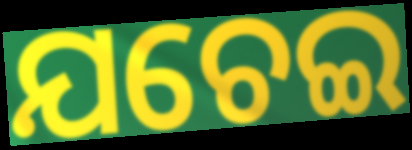
ଯଚେଇ